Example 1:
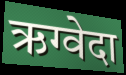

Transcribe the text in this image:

ऋग्वेदा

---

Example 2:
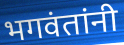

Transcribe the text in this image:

भगवंतांनी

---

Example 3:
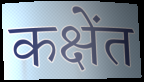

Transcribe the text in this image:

कक्षेंत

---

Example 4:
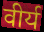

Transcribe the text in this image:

वीर्य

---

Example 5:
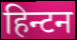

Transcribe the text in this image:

हिन्टन